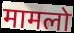
मामलो